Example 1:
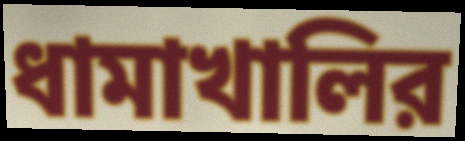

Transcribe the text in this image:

ধামাখালির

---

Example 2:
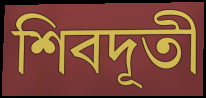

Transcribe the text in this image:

শিবদূতী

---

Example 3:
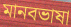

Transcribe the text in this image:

মানবভাষা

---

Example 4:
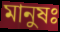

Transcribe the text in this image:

মানুষঃ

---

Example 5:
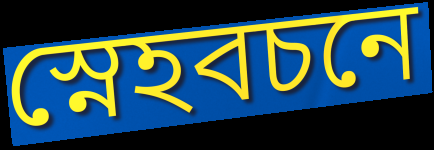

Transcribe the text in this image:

স্নেহবচনে